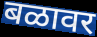
बळावर